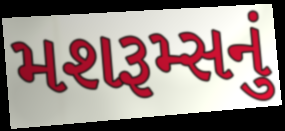
મશરૂમ્સનું